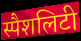
स्पैशलिटी